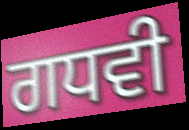
ਗਧਵੀ